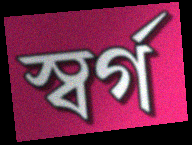
স্বর্গ